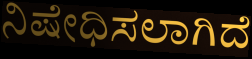
ನಿಷೇಧಿಸಲಾಗಿದೆ